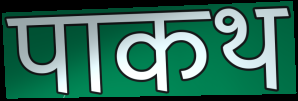
पाकथ